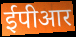
ईपीआर